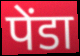
पेंडा